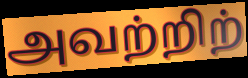
அவற்றிற்